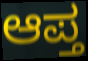
ಆಪ್ತ